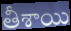
తీశాయి